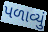
પળાવ્યું